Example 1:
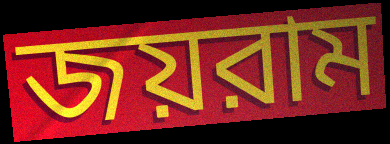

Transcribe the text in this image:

জয়রাম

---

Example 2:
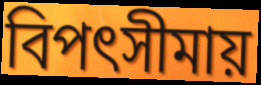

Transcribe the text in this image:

বিপৎসীমায়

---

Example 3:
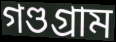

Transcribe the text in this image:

গণ্ডগ্রাম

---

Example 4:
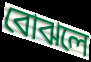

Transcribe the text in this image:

বোঝলে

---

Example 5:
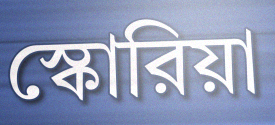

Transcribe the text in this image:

স্কোরিয়া